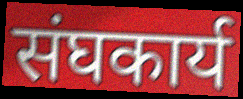
संघकार्य